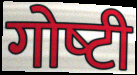
गोष्‍टी